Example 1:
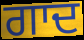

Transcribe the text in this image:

ਗਾਦ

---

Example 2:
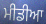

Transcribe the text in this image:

ਮੀਡੀਆ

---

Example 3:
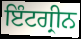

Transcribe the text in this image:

ਇੰਟਗ੍ਰੀਨ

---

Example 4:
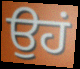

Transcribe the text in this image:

ਉਹਂ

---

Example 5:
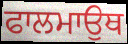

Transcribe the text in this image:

ਫਾਲਮਾਉਥ